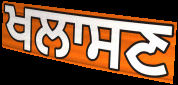
ਖਲਾਸਣ